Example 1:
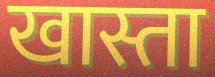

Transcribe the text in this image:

खास्ता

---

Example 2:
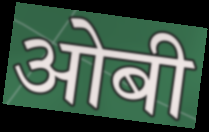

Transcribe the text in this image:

ओबी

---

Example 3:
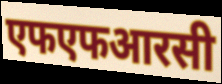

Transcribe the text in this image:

एफएफआरसी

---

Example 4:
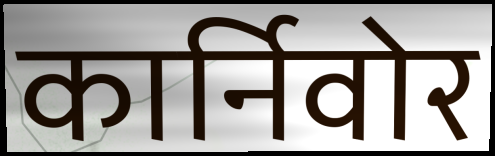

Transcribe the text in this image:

कार्निवोर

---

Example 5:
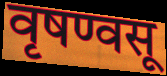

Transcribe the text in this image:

वृषण्वसू